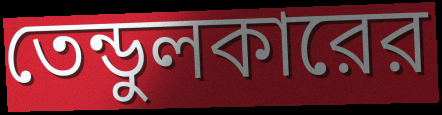
তেন্ডুলকারের